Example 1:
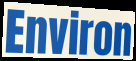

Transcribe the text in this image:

Environ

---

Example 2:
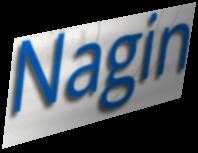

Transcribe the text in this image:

Nagin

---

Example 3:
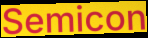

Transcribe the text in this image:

Semicon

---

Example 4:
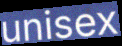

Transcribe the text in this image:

unisex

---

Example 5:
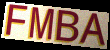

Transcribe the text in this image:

FMBA